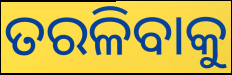
ତରଳିବାକୁ